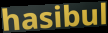
hasibul